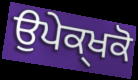
ਉਪੇਕ੍ਖਕੋ